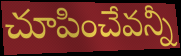
చూపించేవన్నీ